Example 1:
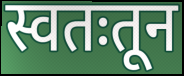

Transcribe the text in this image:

स्वतःतून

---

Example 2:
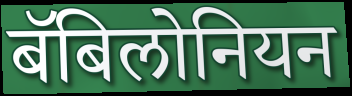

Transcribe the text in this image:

बॅबिलोनियन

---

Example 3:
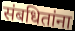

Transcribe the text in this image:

संबधितांना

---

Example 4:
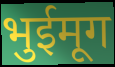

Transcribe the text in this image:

भुईमूग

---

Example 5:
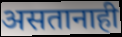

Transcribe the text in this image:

असतानाही